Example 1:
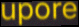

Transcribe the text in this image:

upore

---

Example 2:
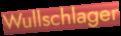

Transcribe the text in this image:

Wullschlager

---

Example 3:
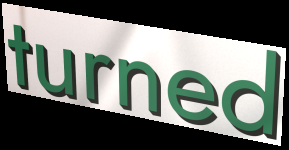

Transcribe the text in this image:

turned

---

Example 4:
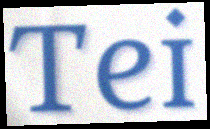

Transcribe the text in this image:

Tei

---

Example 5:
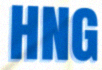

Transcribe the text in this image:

HNG